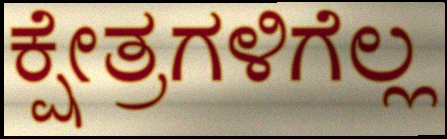
ಕ್ಷೇತ್ರಗಳಿಗೆಲ್ಲ